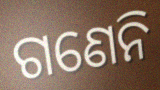
ଗଣେନି